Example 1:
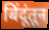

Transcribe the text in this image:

बिंदूंतून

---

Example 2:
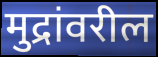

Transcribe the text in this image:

मुद्रांवरील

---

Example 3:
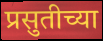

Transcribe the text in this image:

प्रसुतीच्या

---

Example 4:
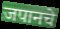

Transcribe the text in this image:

जपानचे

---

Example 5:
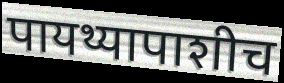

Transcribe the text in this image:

पायथ्यापाशीच